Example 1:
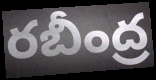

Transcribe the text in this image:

రబీంద్ర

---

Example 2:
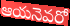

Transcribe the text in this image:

ఆయనెవరో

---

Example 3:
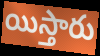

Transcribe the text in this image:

యిస్తారు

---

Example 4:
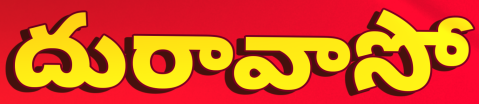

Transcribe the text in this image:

దురావాసో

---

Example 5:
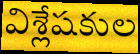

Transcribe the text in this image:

విశ్లేషకుల